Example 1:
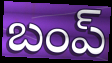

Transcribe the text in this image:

బంప్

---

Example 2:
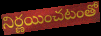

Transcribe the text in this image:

నిర్ణయించటంతో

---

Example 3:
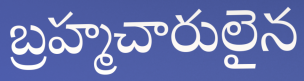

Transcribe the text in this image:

బ్రహ్మచారులైన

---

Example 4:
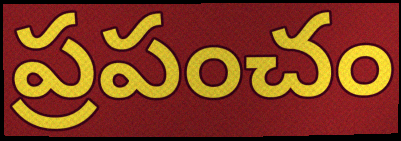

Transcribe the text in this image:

ప్రపంచం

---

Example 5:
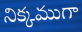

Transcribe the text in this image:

నిక్కముగా